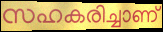
സഹകരിച്ചാണ്